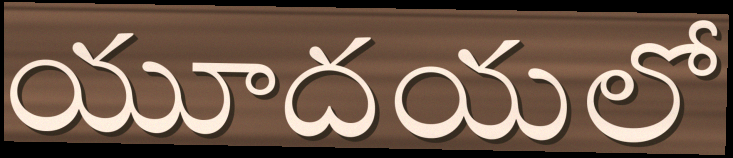
యూదయలో